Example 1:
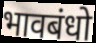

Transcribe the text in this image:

भावबंधो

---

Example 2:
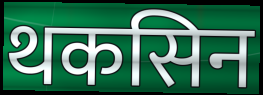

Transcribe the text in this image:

थकसिन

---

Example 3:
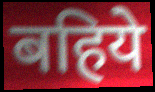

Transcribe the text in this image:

बहिये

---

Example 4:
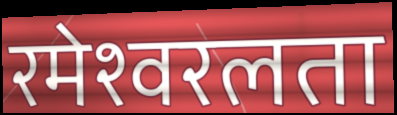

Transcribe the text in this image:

रमेश्वरलता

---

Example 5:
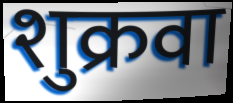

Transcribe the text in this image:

शुक्रवा